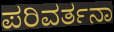
ಪರಿವರ್ತನಾ